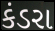
કંડરા